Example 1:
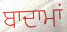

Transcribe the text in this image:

ਬਾਦਾਮਾਂ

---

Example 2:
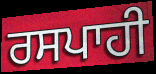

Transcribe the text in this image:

ਰਸਪਾਹੀ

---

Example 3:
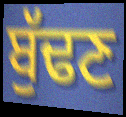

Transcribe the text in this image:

ਬੁੱਢਣ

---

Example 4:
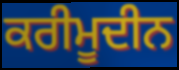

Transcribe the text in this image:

ਕਰੀਮੂਦੀਨ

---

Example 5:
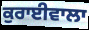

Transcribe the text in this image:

ਕੁਰਾਈਵਾਲਾ